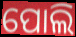
ପୋଲି